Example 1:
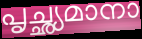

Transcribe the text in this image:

പൃച്ഛ്യമാനാ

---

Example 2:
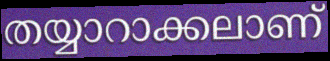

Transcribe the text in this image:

തയ്യാറാക്കലാണ്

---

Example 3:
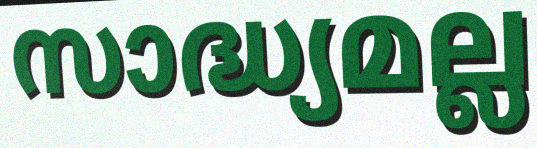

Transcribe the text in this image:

സാദ്ധ്യമല്ല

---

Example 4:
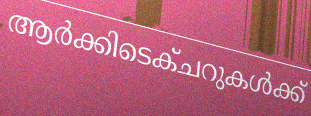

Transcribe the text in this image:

ആർക്കിടെക്ചറുകൾക്ക്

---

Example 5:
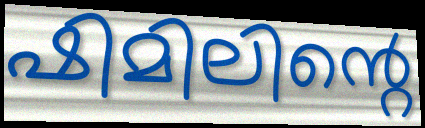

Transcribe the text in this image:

ഷിമിലിന്റെ